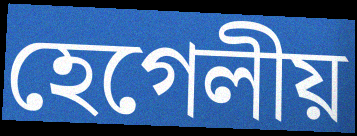
হেগেলীয়